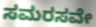
ಸಮರಸವೇ